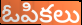
ఓపికలు